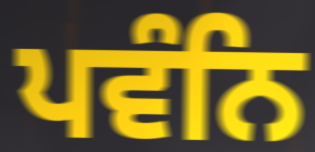
ਪਵੰਨਿ